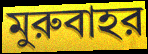
মুরুবাহর